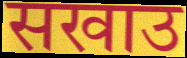
सखाउ